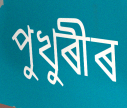
পুখুৰীৰ